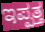
ಇಪ್ಪತ್ತ